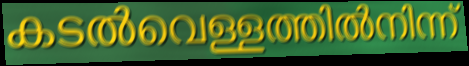
കടൽവെള്ളത്തിൽനിന്ന്